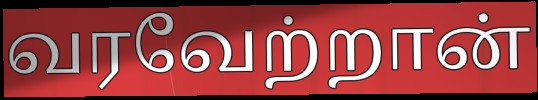
வரவேற்றான்